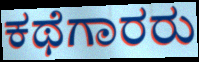
ಕಥೆಗಾರರು